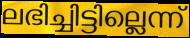
ലഭിച്ചിട്ടില്ലെന്ന്